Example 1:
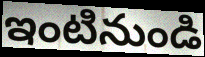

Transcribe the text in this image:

ఇంటినుండి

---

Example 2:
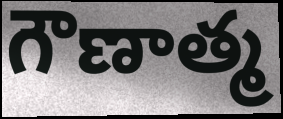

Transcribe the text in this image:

గౌణాత్మ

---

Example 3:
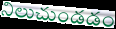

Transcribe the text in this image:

నిలుచుండడం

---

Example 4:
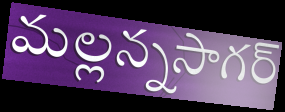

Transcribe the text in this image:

మల్లన్నసాగర్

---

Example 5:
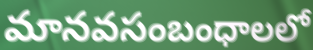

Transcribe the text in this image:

మానవసంబంధాలలో